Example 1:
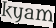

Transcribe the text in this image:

kyam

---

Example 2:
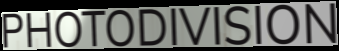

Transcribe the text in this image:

PHOTODIVISION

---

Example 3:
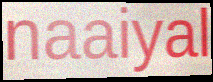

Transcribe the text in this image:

naaiyal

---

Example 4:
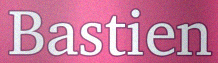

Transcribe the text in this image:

Bastien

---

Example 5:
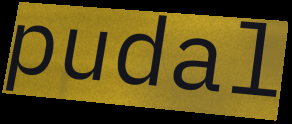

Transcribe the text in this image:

pudal